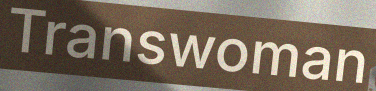
Transwoman